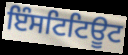
ਇੰਸਟਿਟਿਊਟ